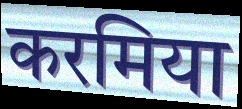
करमिया